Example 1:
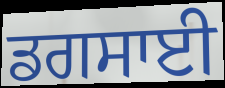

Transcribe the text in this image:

ਡਗਸਾਈ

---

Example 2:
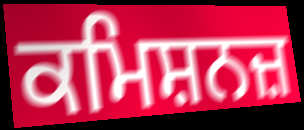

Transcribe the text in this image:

ਕਮਿਸ਼ਨਜ਼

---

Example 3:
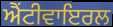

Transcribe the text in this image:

ਐਂਟੀਵਾਇਰਲ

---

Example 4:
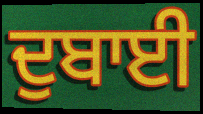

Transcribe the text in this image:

ਦੁਬਾਈ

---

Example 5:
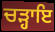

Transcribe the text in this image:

ਚੜ੍ਹਾਇ